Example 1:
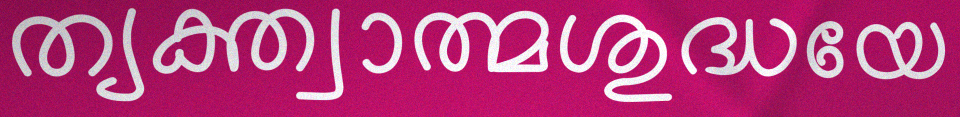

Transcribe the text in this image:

ത്യക്ത്വാത്മശുദ്ധയേ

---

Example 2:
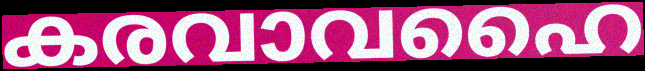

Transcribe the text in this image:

കരവാവഹൈ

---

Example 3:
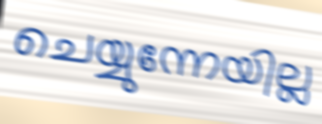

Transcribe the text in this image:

ചെയ്യുന്നേയില്ല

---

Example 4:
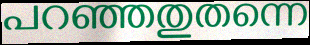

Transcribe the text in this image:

പറഞ്ഞതുതന്നെ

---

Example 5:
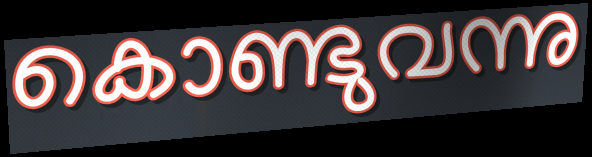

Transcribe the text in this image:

കൊണ്ടുവന്നു